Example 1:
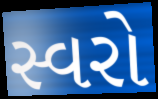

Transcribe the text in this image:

સ્વરો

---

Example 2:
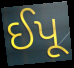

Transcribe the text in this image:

ઈપૂ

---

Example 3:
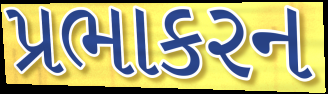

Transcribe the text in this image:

પ્રભાકરન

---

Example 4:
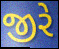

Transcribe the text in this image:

જીરે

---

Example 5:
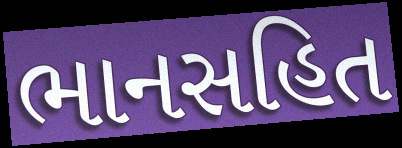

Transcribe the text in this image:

ભાનસહિત